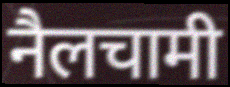
नैलचामी